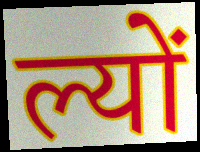
ल्यों